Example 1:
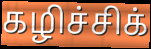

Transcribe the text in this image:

கழிச்சிக்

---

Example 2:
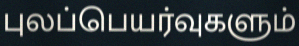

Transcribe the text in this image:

புலப்பெயர்வுகளும்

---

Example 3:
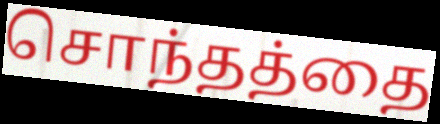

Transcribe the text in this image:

சொந்தத்தை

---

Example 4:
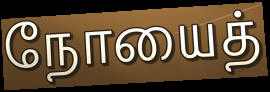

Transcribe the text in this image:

நோயைத்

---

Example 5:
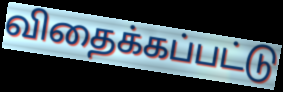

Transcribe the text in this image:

விதைக்கப்பட்டு